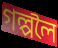
গল্পলৈ